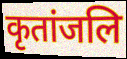
कृतांजलि